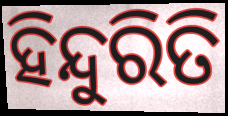
ହିନ୍ଦୁରିତି